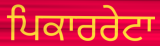
ਪਿਕਾਰਰੇਟਾ